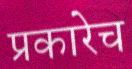
प्रकारेच